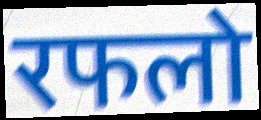
रफलो